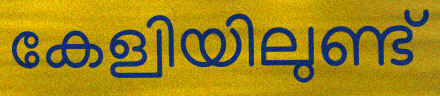
കേള്വിയിലുണ്ട്